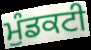
ਮੁੰਡਕਟੀ